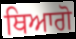
ਥਿਆਗੋ